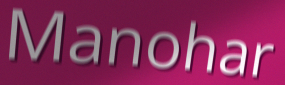
Manohar